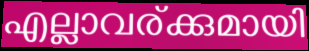
എല്ലാവര്ക്കുമായി